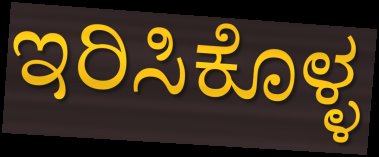
ಇರಿಸಿಕೊಳ್ಳ